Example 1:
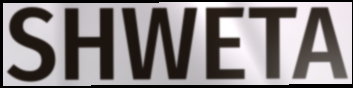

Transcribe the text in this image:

SHWETA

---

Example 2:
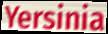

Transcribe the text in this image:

Yersinia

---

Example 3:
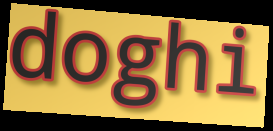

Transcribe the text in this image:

doghi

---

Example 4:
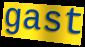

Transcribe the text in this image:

gast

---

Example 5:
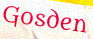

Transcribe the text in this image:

Gosden